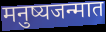
मनुष्यजन्मात